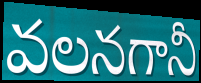
వలనగానీ